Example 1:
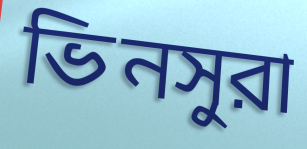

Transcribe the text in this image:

ভিনসুরা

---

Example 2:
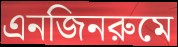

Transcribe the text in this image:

এনজিনরুমে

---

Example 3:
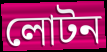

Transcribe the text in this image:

লোটন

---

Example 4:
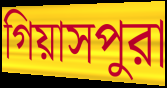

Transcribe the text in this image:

গিয়াসপুরা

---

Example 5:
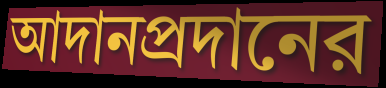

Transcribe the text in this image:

আদানপ্রদানের